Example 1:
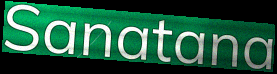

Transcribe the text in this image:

Sanatana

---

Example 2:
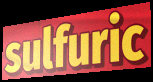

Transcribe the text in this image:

sulfuric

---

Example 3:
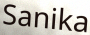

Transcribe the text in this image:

Sanika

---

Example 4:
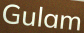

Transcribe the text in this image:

Gulam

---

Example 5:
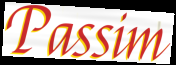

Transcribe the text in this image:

Passim